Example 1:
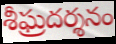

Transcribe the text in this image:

శీఘ్రదర్శనం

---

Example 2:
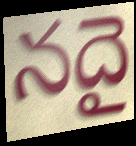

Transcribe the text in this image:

నదై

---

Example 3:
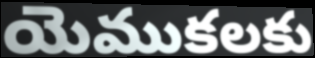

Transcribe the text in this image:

యెముకలకు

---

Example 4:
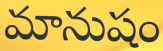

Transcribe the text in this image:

మానుషం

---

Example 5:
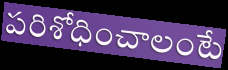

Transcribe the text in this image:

పరిశోధించాలంటే